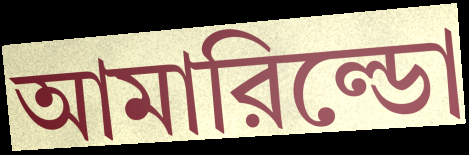
আমারিল্ডো